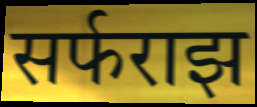
सर्फराझ